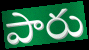
పారు